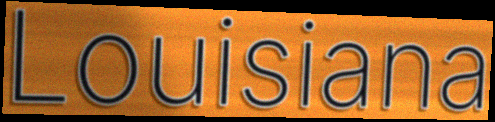
Louisiana